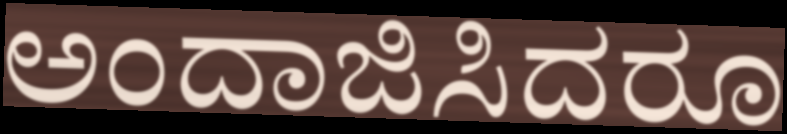
ಅಂದಾಜಿಸಿದರೂ